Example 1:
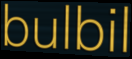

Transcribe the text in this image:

bulbil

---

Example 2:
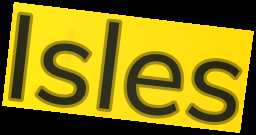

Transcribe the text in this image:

Isles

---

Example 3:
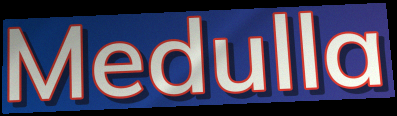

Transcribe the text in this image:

Medulla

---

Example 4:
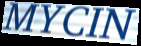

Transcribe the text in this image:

MYCIN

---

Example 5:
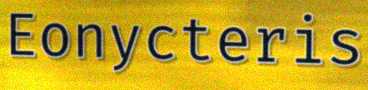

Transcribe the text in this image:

Eonycteris